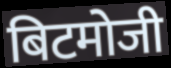
बिटमोजी